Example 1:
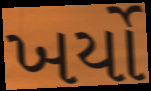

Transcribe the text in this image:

ખર્યો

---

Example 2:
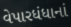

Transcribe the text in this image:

વેપારધંધાનાં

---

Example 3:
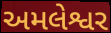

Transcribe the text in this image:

અમલેશ્વર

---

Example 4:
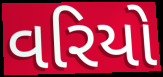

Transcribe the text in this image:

વરિયો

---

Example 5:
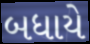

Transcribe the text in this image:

બધાયે